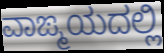
ವಾಙ್ಮಯದಲ್ಲಿ